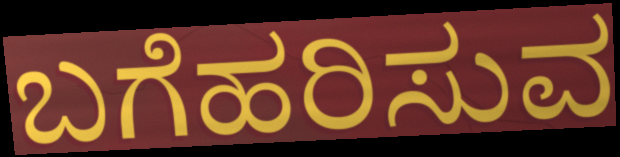
ಬಗೆಹರಿಸುವ